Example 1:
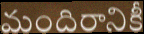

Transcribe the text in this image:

మందిరానికీ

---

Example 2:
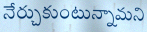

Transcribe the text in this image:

నేర్చుకుంటున్నామని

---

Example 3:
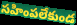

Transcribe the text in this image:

సహింపలేకుండ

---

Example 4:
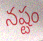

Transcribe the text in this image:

నష్టం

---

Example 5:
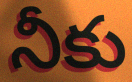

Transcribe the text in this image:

నీకు